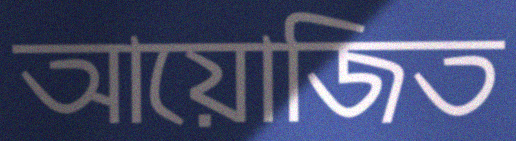
আয়োজিত